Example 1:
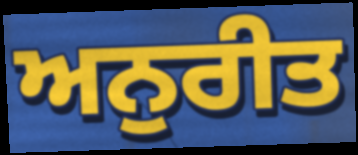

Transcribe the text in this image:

ਅਨੁਰੀਤ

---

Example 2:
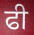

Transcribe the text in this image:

ਫੀ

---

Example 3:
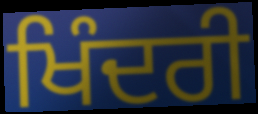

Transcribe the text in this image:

ਖਿੰਦਰੀ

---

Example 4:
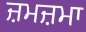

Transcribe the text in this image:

ਜ਼ਮਜ਼ਮਾ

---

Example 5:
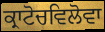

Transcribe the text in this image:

ਕ੍ਰਾਟੋਚਵਿਲੋਵਾ